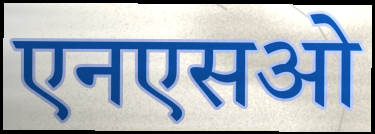
एनएसओ